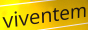
viventem